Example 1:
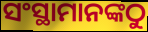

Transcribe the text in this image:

ସଂସ୍ଥାମାନଙ୍କଠୁ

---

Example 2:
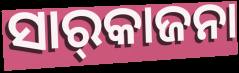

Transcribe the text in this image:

ସାର୍‌କାଜନା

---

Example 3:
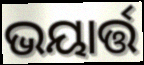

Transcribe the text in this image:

ଭୟାର୍ତ୍ତ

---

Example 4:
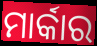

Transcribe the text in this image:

ମାର୍କାର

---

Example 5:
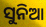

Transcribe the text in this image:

ସୁନିଆ